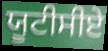
ਯੂਟੀਸੀਏ